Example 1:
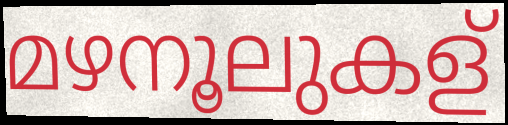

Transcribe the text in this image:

മഴനൂലുകള്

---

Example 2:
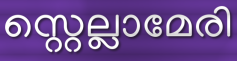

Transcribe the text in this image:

സ്റ്റെല്ലാമേരി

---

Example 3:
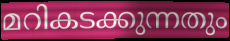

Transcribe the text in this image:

മറികടക്കുന്നതും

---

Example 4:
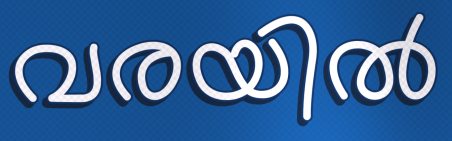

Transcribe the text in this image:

വരയിൽ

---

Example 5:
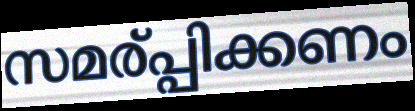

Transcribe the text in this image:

സമര്പ്പിക്കണം